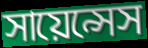
সায়েন্সেস